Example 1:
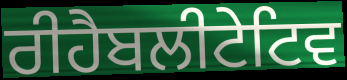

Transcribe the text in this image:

ਰੀਹੈਬਲੀਟੇਟਿਵ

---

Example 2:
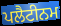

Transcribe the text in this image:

ਪਲੈਟੀਨਮ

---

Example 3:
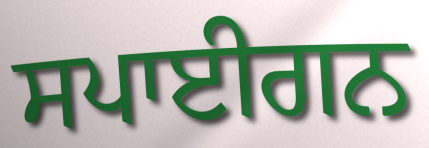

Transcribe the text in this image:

ਸਪਾਈਗਨ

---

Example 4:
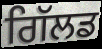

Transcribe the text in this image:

ਗਿੱਲਡ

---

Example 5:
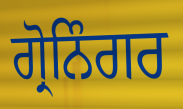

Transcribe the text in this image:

ਗ੍ਰੋਨਿੰਗਰ